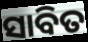
ସାବିତ